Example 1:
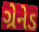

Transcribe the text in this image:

ગ્રેનેડ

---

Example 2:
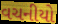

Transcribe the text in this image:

વચનીયો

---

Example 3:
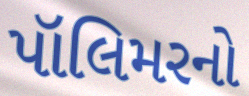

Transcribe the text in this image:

પૉલિમરનો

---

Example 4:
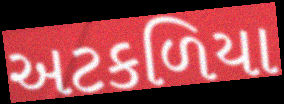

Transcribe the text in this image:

અટકળિયા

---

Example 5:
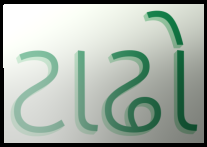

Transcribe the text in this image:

ટાઢો